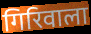
गिरिवाला